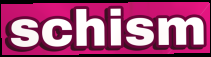
schism